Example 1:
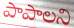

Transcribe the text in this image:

పాపాలని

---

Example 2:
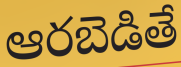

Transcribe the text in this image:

ఆరబెడితే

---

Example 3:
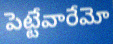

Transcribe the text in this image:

పెట్టేవారేమో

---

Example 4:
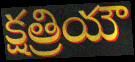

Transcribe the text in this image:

క్షత్రియౌ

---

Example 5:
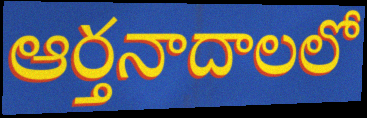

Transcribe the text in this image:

ఆర్తనాదాలలో